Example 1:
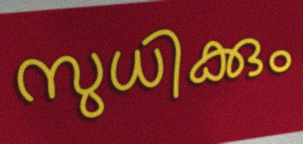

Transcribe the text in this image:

സുധിക്കും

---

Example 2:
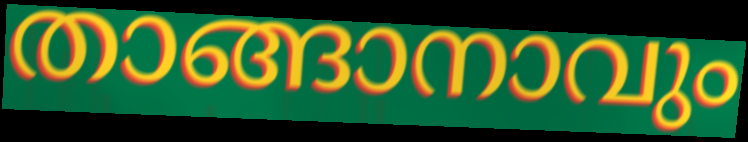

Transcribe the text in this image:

താങ്ങാനാവും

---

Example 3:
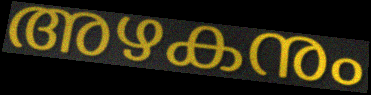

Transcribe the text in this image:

അഴകനും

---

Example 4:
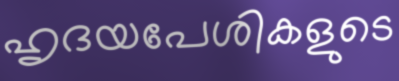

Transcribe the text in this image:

ഹൃദയപേശികളുടെ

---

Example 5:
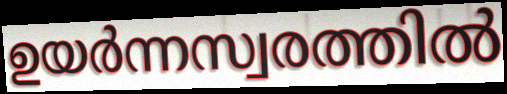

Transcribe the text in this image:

ഉയർന്നസ്വരത്തിൽ